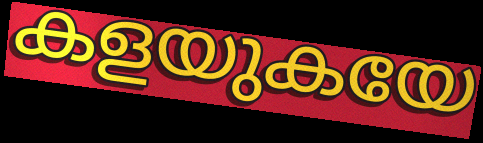
കളയുകയേ